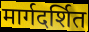
मार्गदर्शित